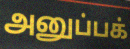
அனுப்பக்